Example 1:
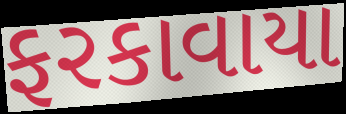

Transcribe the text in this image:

ફરકાવાયા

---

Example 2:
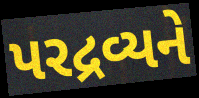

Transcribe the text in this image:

પરદ્રવ્યને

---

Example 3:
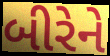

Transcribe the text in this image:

બીરેને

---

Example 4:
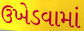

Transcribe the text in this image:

ઉખેડવામાં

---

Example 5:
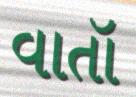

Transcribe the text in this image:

વાતૉ